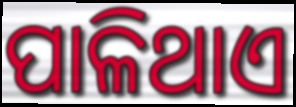
ପାଳିଥାଏ